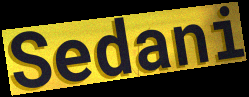
Sedani